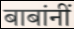
बाबांनीं